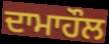
ਦਾਮਾਹੌਲ